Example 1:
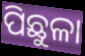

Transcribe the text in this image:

ପିଛୁଳା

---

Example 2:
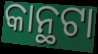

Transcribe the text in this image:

କାନ୍ଥଟା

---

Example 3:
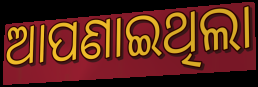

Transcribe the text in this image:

ଆପଣାଇଥିଲା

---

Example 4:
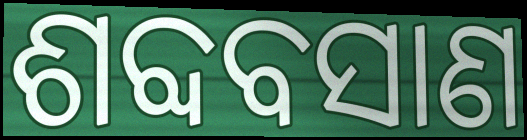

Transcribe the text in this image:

ଶବ୍ଦବସାଣ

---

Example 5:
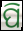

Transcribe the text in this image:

ପି